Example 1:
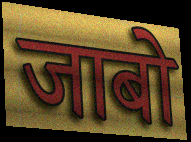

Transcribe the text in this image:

जाबो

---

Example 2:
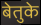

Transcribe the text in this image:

बेतुके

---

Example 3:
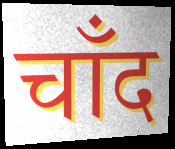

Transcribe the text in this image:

चाँद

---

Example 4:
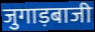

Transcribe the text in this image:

जुगाड़बाजी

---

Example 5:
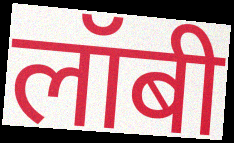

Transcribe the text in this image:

लॉबी